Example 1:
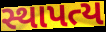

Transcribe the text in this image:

સ્થાપત્ય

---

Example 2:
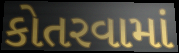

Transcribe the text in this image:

કોતરવામાં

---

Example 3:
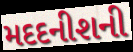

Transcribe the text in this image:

મદદનીશની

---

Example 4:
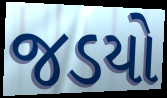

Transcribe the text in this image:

જડયો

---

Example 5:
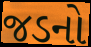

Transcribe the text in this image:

જડનો